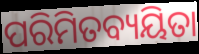
ପରିମିତବ୍ୟୟିତା